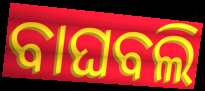
ବାଘବଲି